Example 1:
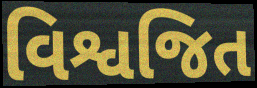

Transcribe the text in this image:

વિશ્વજિત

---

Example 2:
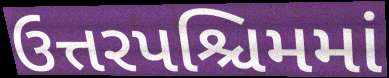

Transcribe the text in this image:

ઉત્તરપશ્ચિમમાં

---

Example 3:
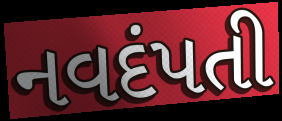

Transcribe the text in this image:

નવદંપતી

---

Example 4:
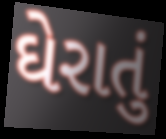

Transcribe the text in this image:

ઘેરાતું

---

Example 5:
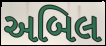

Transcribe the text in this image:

અબિલ